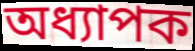
অধ্যাপক